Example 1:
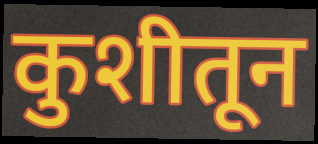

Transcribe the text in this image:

कुशीतून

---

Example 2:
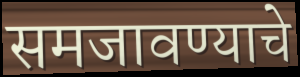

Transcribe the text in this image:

समजावण्याचे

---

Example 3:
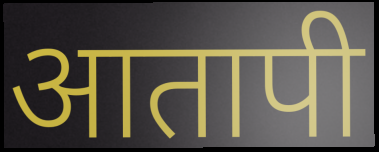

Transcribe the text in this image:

आतापी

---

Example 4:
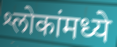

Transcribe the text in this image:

श्लोकांमध्ये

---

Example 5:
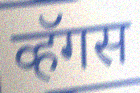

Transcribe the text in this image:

व्हॅगस